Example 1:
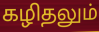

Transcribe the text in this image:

கழிதலும்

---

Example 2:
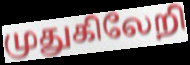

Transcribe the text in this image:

முதுகிலேறி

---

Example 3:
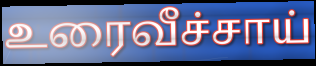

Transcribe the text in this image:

உரைவீச்சாய்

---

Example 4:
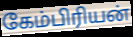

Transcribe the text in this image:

கேம்பிரியன்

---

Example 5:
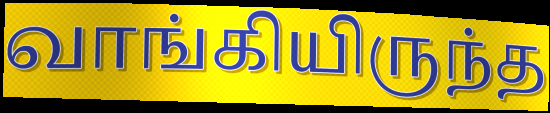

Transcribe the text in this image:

வாங்கியிருந்த